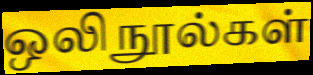
ஒலிநூல்கள்